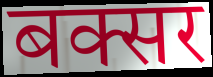
बक्सर